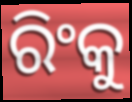
ରିଂକୁ